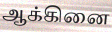
ஆக்கினை